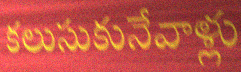
కలుసుకునేవాళ్లు